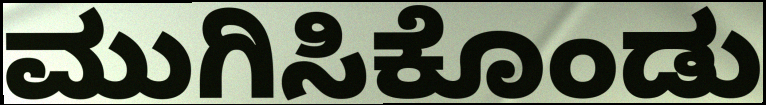
ಮುಗಿಸಿಕೊಂಡು